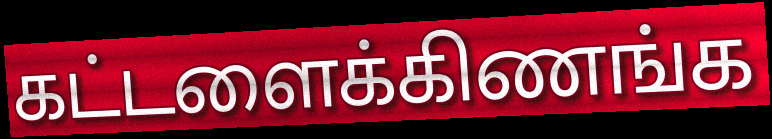
கட்டளைக்கிணங்க